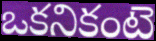
ఒకనికంటె